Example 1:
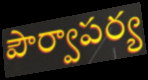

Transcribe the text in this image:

పౌర్వాపర్య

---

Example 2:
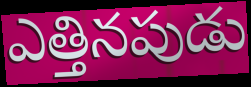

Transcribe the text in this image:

ఎత్తినపుడు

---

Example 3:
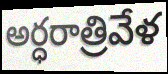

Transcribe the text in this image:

అర్ధరాత్రివేళ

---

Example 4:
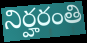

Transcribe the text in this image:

నిర్హరంతి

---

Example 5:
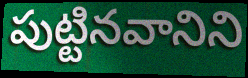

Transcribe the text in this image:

పుట్టినవానిని